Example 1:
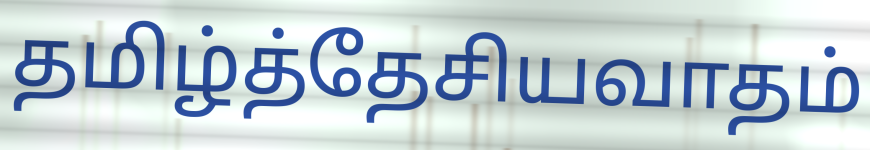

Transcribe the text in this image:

தமிழ்த்தேசியவாதம்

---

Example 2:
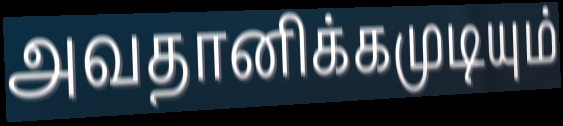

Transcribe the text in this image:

அவதானிக்கமுடியும்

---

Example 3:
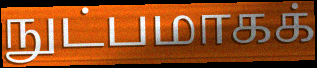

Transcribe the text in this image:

நுட்பமாகக்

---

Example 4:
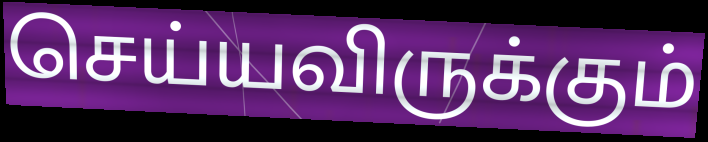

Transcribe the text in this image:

செய்யவிருக்கும்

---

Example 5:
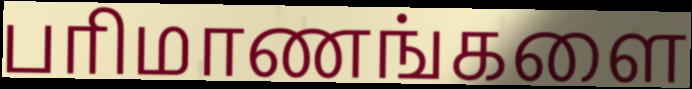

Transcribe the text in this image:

பரிமாணங்களை